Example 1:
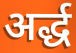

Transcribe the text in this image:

अर्द्ध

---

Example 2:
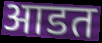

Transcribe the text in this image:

आडत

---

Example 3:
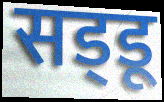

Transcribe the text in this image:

सड्‌डू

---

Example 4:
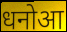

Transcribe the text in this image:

धनोआ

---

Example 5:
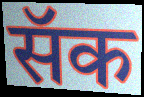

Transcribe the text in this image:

सॅक